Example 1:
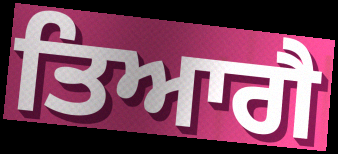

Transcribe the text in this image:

ਤਿਆਗੈ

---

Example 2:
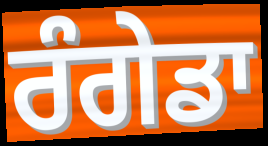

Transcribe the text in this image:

ਰੰਗੇਡਾ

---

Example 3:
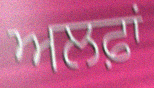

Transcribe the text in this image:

ਅਲਫ਼ਾਂ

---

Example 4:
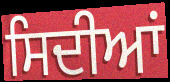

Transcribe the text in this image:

ਸਿਦੀਆਂ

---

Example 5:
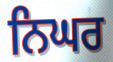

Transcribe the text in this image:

ਨਿਘਰ